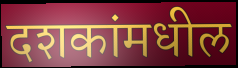
दशकांमधील